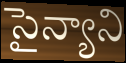
సైన్యాని